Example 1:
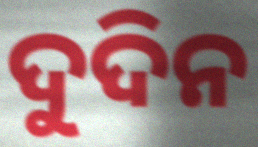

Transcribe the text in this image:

ଦୁଦିନ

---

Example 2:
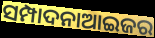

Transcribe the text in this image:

ସମ୍ପାଦନାଆଇଜର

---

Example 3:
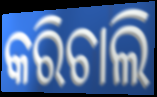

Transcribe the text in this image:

କରିଚାଲି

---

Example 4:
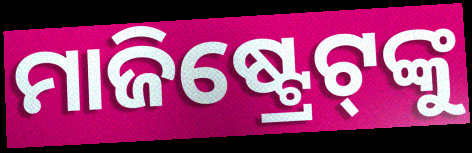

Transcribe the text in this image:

ମାଜିଷ୍ଟ୍ରେଟ୍‌ଙ୍କୁ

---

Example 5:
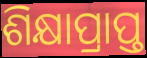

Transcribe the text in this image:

ଶିକ୍ଷାପ୍ରାପ୍ତ